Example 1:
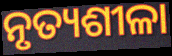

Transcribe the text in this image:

ନୃତ୍ୟଶୀଳା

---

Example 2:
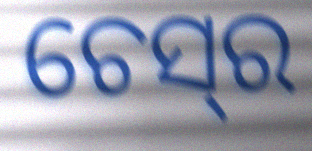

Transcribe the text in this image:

ଚେସ୍‌ର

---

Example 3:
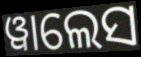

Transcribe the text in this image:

ୱାଲେସ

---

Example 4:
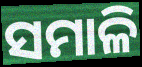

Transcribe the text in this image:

ସମାଳି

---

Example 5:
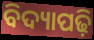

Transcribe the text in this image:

ବିଦ୍ୟାପଢ଼ି